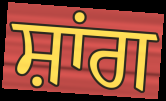
ਸ਼ਾਂਗ